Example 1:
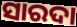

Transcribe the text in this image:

ସାରଦା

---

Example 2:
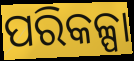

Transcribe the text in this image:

ପରିକଳ୍ପା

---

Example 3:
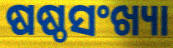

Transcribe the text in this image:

ଷଷ୍ଠସଂଖ୍ୟା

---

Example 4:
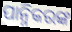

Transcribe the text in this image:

ପାନ୍ନିକରଙ୍କ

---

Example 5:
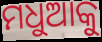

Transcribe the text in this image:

ମଧୁଆକୁ